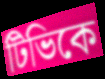
টিভিকে